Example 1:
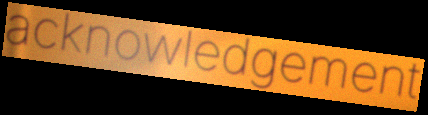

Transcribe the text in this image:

acknowledgement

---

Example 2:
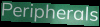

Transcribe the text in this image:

Peripherals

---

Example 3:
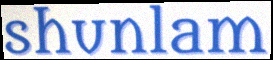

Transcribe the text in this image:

shunlam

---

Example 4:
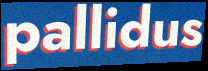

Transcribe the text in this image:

pallidus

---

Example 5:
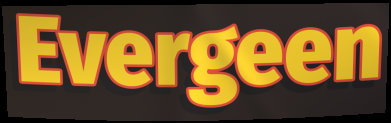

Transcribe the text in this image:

Evergeen